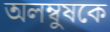
অলম্বুষকে